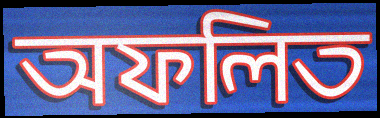
অফলিত